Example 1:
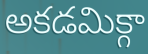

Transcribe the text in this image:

అకడమిక్గా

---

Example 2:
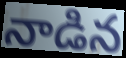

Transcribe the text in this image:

నాడిన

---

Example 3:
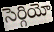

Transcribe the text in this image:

సెర్గియో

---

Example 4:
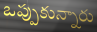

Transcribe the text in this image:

ఒప్పుకున్నారు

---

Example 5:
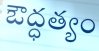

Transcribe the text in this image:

ఔద్ధత్యం